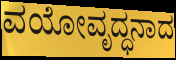
ವಯೋವೃದ್ಧನಾದ